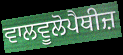
ਵਾਲਵੂਲੋਪੈਥੀਜ਼